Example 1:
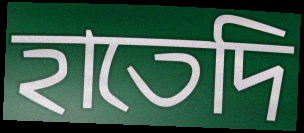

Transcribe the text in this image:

হাতেদি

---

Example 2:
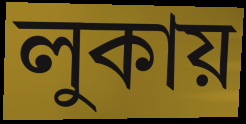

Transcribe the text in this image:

লুকায়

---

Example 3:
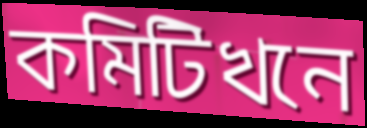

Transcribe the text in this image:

কমিটিখনে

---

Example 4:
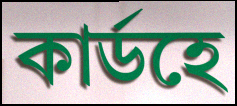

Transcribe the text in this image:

কাৰ্ডহে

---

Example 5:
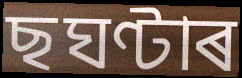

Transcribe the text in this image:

ছঘণ্টাৰ